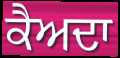
ਕੈਅਦਾ